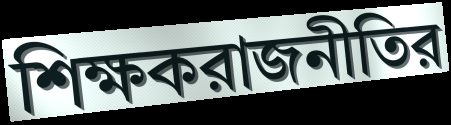
শিক্ষকরাজনীতির